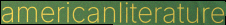
americanliterature